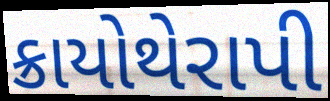
ક્રાયોથેરાપી